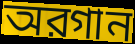
অরগান